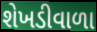
શેખડીવાળા